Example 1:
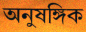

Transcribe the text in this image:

অনুষঙ্গিক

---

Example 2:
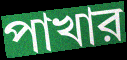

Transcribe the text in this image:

পাখার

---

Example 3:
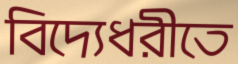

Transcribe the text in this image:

বিদ্যেধরীতে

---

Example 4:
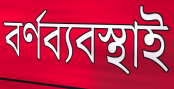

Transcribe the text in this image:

বর্ণব্যবস্থাই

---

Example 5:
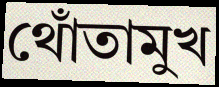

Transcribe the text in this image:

থোঁতামুখ